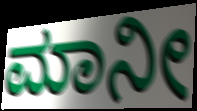
ಮಾನೀ